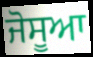
ਜੋਸੂਆ